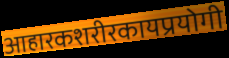
आहारकशरीरकायप्रयोगी